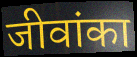
जीवांका